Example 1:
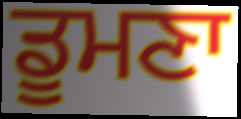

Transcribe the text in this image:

ਡੂਮਣਾ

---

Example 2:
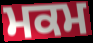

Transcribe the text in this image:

ਮਕਮ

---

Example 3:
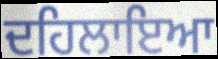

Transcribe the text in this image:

ਦਹਿਲਾਇਆ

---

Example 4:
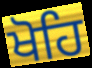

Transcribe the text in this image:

ਖੋਹਿ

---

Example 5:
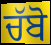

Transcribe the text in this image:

ਚੱਬੋ